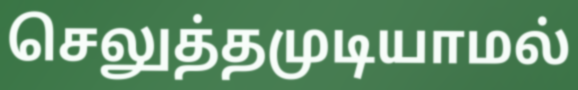
செலுத்தமுடியாமல்